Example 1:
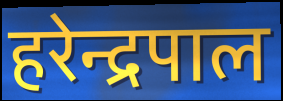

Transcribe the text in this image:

हरेन्द्रपाल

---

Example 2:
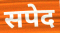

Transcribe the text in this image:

सपेद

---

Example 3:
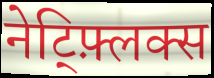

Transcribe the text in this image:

नेट्फ़्लिक्स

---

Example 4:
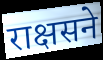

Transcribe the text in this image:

राक्षसने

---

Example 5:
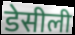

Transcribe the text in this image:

डेसीली